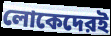
লোকেদেরই